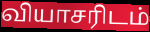
வியாசரிடம்